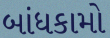
બાંધકામો